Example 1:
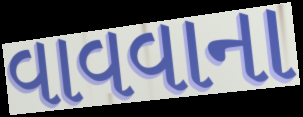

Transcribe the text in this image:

વાવવાના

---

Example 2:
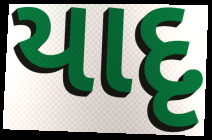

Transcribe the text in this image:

યાદૃ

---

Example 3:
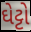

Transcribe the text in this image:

ઘેટ્ટો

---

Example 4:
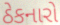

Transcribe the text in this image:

ઠેકનારો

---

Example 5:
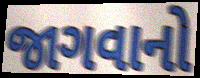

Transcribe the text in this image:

જાગવાનો